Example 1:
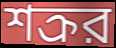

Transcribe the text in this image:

শক্রর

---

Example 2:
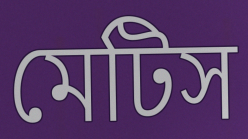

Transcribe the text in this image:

মেটিস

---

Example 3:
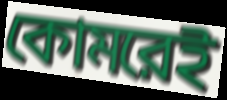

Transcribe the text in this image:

কোমরেই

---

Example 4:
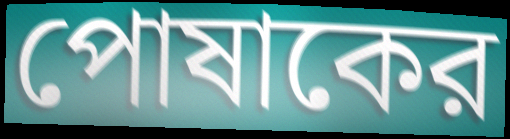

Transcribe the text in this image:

পোষাকের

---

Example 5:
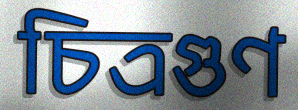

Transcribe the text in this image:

চিত্রগুণ